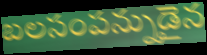
బలసంపన్నుడైన